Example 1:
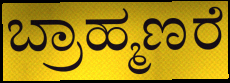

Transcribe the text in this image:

ಬ್ರಾಹ್ಮಣರೆ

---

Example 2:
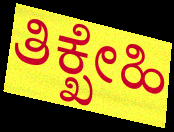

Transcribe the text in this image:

ತಿಕ್ಖೇಹಿ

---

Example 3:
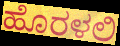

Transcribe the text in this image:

ಹೊರಳಲಿ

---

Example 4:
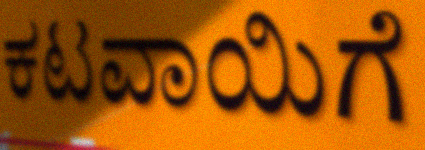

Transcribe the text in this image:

ಕಟವಾಯಿಗೆ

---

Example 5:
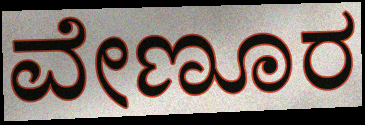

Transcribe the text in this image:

ವೇಣೂರ